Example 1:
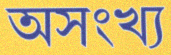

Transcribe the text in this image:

অসংখ্য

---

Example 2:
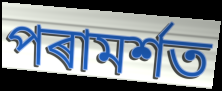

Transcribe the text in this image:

পৰামৰ্শত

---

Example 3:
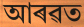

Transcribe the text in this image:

আৰৱত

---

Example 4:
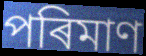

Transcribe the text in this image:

পৰিমাণ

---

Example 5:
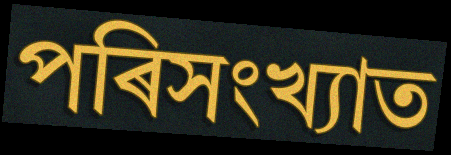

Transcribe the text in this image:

পৰিসংখ্যাত